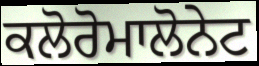
ਕਲੋਰੋਮਾਲੋਨੇਟ